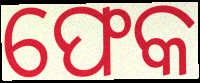
ଫେକ